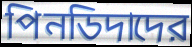
পিনডিদাদের